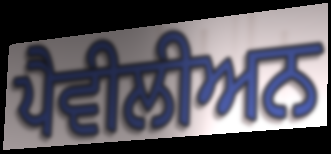
ਪੈਵੀਲੀਅਨ